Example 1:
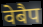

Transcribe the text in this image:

वेबैप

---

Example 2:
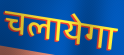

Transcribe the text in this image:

चलायेगा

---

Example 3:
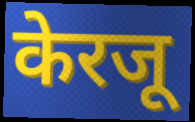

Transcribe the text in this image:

केरजू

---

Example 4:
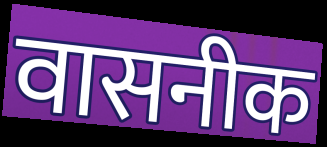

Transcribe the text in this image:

वासनीक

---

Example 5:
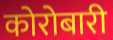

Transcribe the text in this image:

कोरोबारी